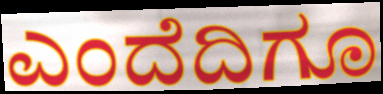
ಎಂದೆದಿಗೂ